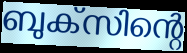
ബുക്‌സിന്റെ